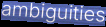
ambiguities